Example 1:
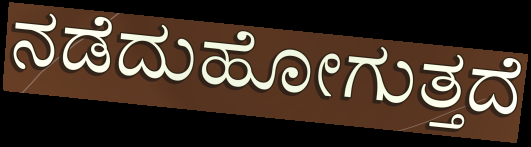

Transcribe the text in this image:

ನಡೆದುಹೋಗುತ್ತದೆ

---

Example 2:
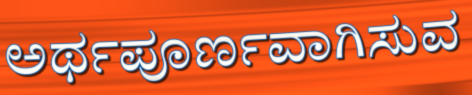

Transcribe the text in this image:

ಅರ್ಥಪೂರ್ಣವಾಗಿಸುವ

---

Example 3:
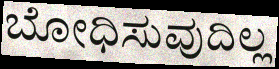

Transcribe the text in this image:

ಬೋಧಿಸುವುದಿಲ್ಲ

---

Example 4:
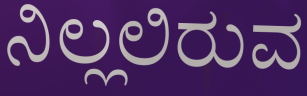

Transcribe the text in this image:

ನಿಲ್ಲಲಿರುವ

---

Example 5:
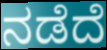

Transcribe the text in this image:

ನಡೆದೆ